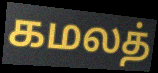
கமலத்